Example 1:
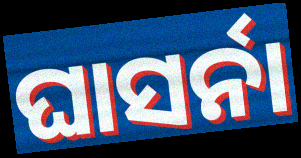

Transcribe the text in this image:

ଘାସର୍ନା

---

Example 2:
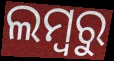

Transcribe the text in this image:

ଲମ୍ବରୁ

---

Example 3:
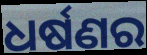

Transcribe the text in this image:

ଧର୍ଷଣର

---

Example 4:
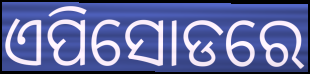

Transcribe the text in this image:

ଏପିସୋଡରେ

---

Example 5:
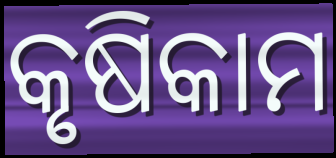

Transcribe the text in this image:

କୃଷିକାମ